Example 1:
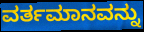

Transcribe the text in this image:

ವರ್ತಮಾನವನ್ನು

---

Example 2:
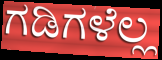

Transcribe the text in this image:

ಗಡಿಗಳೆಲ್ಲ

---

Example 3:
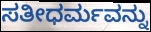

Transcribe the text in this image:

ಸತೀಧರ್ಮವನ್ನು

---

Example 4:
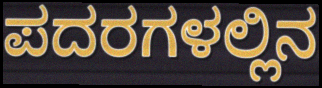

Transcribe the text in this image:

ಪದರಗಳಲ್ಲಿನ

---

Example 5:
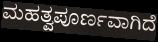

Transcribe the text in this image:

ಮಹತ್ವಪೂರ್ಣವಾಗಿದೆ